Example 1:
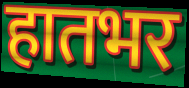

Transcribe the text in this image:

हातभर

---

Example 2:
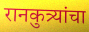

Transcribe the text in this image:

रानकुत्र्यांचा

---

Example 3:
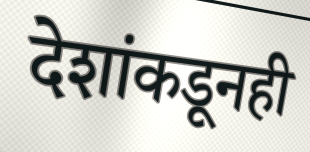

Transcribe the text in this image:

देशांकडूनही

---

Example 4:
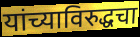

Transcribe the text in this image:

यांच्याविरुद्धचा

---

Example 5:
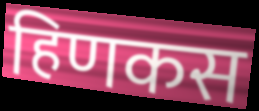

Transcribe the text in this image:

हिणकस